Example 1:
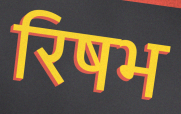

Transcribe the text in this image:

रिषभ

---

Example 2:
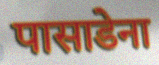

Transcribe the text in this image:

पासाडेना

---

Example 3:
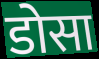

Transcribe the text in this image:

डोसा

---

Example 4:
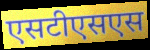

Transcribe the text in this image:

एसटीएसएस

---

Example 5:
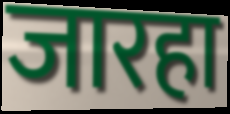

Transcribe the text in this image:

जारहा